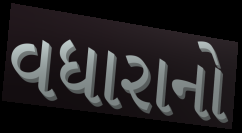
વધારાનો